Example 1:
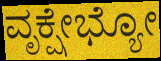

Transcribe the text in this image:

ವೃಕ್ಷೇಭ್ಯೋ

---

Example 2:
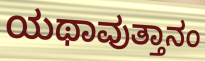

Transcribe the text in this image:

ಯಥಾವುತ್ತಾನಂ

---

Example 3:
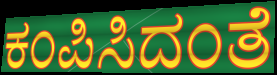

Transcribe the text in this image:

ಕಂಪಿಸಿದಂತೆ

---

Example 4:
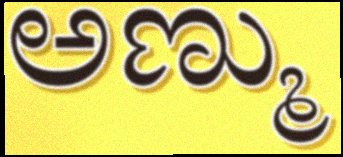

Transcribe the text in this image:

ಅಣ್ಮು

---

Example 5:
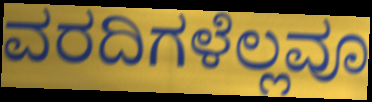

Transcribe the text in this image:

ವರದಿಗಳೆಲ್ಲವೂ